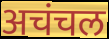
अचंचल